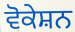
ਵੋਕੇਸ਼ਨ